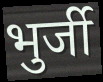
भुर्जी